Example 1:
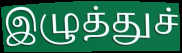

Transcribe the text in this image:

இழுத்துச்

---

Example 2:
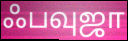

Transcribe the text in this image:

ஃபவுஜா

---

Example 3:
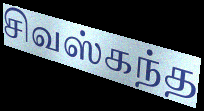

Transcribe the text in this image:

சிவஸ்கந்த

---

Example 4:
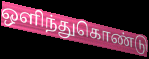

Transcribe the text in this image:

ஒளிந்துகொண்டு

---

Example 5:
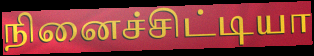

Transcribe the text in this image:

நினைச்சிட்டியா